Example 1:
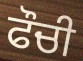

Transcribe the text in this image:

ਫੌਚੀ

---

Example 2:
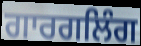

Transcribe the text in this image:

ਗਾਰਗਲਿੰਗ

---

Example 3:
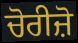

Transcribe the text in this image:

ਚੋਰੀਜ਼ੋ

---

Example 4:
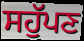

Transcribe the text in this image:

ਸਹੁੱਪਣ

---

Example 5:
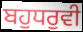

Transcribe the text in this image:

ਬਹੁਧਰੁਵੀ